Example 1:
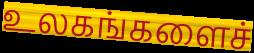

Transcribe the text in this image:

உலகங்களைச்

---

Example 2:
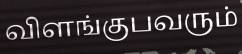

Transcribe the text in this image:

விளங்குபவரும்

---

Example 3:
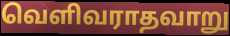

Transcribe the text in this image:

வெளிவராதவாறு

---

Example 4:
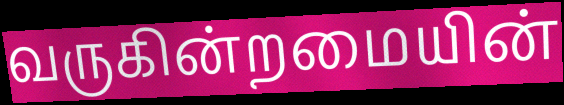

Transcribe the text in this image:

வருகின்றமையின்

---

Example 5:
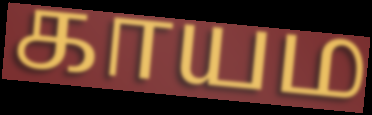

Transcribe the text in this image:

காயம